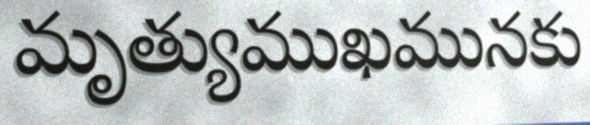
మృత్యుముఖమునకు